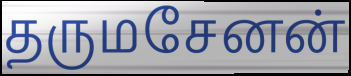
தருமசேனன்